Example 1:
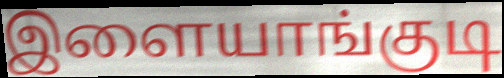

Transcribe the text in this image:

இளையாங்குடி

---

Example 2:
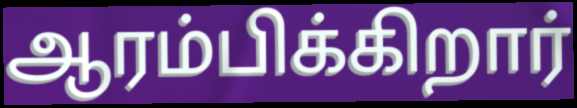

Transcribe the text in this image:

ஆரம்பிக்கிறார்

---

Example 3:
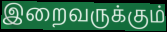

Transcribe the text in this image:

இறைவருக்கும்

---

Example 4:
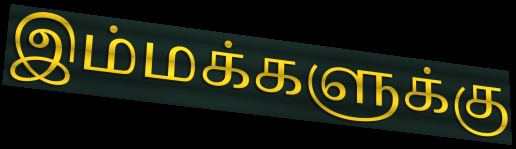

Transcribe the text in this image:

இம்மக்களுக்கு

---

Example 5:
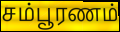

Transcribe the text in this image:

சம்பூரணம்